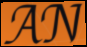
AN